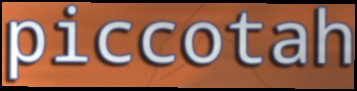
piccotah